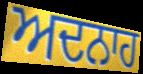
ਅਦਨਾਹ